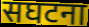
सघटना